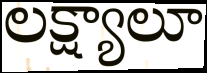
లక్ష్యాలూ